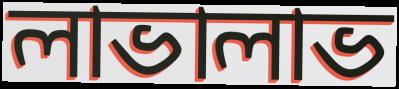
লাভালাভ